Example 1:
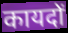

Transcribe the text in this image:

कायदों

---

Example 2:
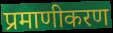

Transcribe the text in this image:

प्रमाणीकरण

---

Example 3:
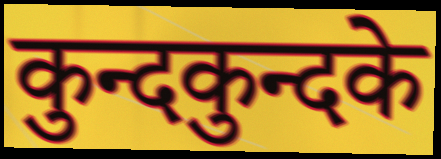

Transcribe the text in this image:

कुन्दकुन्दके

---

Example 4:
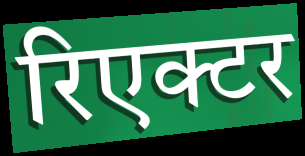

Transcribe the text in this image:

रिएक्टर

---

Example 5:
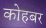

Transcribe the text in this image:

कोहबर